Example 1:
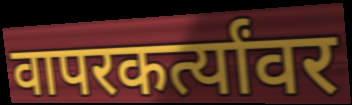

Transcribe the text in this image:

वापरकर्त्यांवर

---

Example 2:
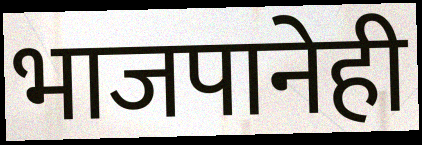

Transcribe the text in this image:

भाजपानेही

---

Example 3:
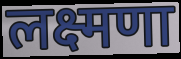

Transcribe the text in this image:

लक्ष्मणा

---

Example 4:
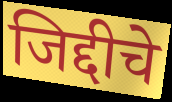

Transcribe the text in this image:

जिद्दीचे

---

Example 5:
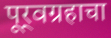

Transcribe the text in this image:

पूर्वग्रहाचा